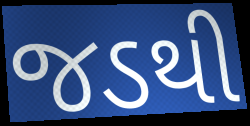
જડથી